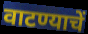
वाटण्याचें